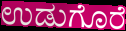
ಉಡುಗೊರೆ